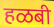
हळबी